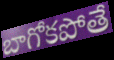
బాగోకపోతే